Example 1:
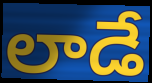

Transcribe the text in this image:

లాడే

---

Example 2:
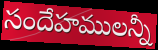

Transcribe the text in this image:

సందేహములన్నీ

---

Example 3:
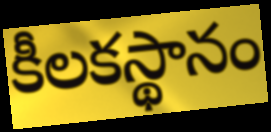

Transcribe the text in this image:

కీలకస్థానం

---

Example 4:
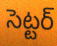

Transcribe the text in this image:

సెట్టర్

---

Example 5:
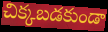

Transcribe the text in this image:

చిక్కబడకుండా